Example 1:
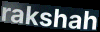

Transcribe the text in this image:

rakshah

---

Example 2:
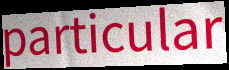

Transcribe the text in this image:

particular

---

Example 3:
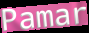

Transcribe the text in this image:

Pamar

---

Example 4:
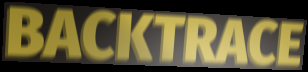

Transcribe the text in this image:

BACKTRACE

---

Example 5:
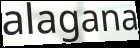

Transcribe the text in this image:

alagana